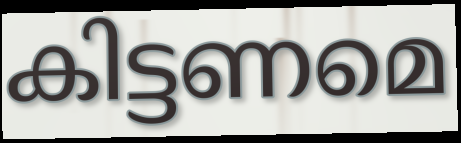
കിട്ടണമെ